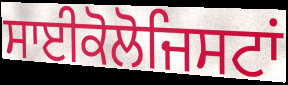
ਸਾਈਕੋਲੋਜਿਸਟਾਂ